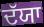
ਦੱਯਾ